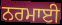
ਨਰਮਾਈ